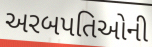
અરબપતિઓની